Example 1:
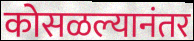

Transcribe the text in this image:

कोसळल्यानंतर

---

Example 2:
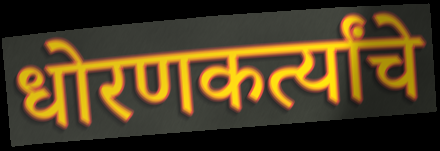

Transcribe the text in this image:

धोरणकर्त्यांचे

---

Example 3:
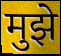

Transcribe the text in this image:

मुझे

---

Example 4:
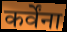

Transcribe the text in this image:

कर्वेंना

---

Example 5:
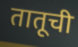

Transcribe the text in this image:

तातूची